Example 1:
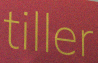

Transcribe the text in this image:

tiller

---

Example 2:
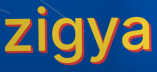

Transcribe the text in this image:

zigya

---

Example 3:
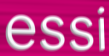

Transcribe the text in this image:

essi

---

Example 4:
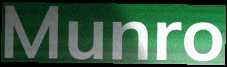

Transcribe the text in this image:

Munro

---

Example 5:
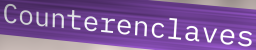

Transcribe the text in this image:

Counterenclaves